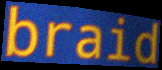
braid